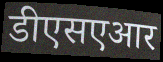
डीएसएआर